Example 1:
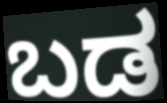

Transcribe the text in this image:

ಬಡ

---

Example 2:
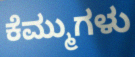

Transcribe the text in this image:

ಕೆಮ್ಮುಗಳು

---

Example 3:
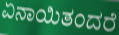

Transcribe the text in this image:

ಏನಾಯಿತಂದರೆ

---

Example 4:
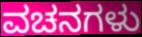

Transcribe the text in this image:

ವಚನಗಳು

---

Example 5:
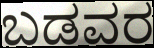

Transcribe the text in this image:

ಬಡವರ